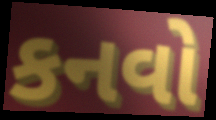
કનવો